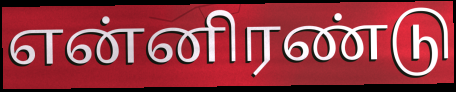
என்னிரண்டு